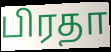
பிரதா